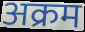
अक्रम